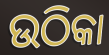
ଉଠିକା